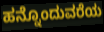
ಹನ್ನೊಂದುವರೆಯ